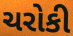
ચરોકી